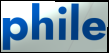
phile